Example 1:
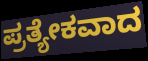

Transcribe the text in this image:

ಪ್ರತ್ಯೇಕವಾದ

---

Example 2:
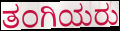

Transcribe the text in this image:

ತಂಗಿಯರು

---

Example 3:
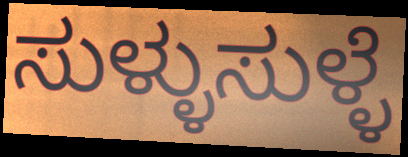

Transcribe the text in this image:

ಸುಳ್ಳುಸುಳ್ಳೆ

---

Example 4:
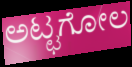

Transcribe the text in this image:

ಅಟ್ಟಗೋಲ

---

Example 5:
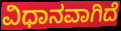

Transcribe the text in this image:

ವಿಧಾನವಾಗಿದೆ